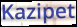
Kazipet